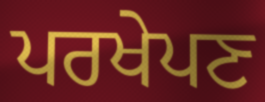
ਪਰਖੇਪਣ